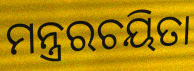
ମନ୍ତ୍ରରଚୟିତା